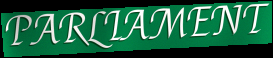
PARLIAMENT